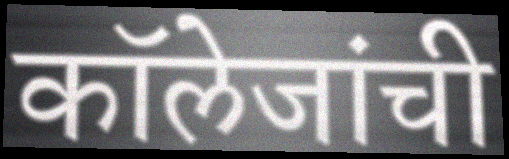
कॉलेजांची